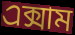
এক্সাম